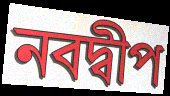
নবদ্বীপ